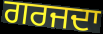
ਗਰਜਦਾ